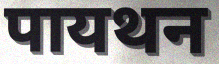
पायथन